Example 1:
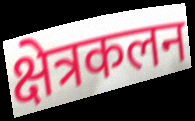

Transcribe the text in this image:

क्षेत्रकलन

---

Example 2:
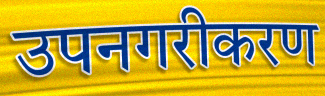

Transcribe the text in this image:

उपनगरीकरण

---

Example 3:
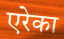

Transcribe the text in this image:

एरेका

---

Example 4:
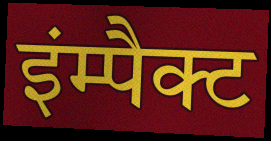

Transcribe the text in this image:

इंम्पैक्ट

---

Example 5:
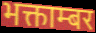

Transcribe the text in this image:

भक्ताम्बर